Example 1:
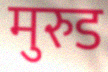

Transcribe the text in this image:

मुरुड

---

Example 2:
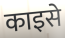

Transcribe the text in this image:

काइसे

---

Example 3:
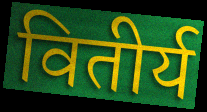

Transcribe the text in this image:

वितीर्य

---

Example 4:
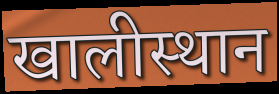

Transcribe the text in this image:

खालीस्थान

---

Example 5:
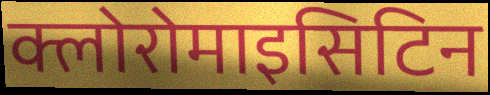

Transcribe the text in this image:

क्लोरोमाइसिटिन